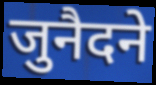
जुनैदने